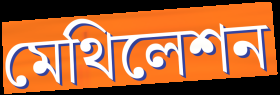
মেথিলেশন